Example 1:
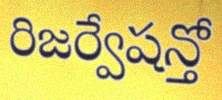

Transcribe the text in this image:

రిజర్వేషన్తో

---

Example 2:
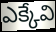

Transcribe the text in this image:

ఎక్కేవి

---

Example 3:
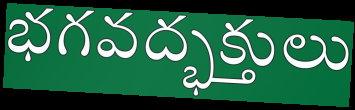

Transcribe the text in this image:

భగవద్భక్తులు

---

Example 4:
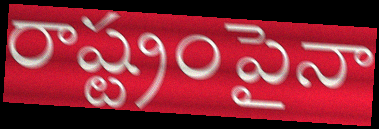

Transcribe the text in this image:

రాష్ట్రంపైనా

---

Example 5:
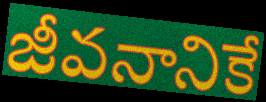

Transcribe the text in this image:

జీవనానికే